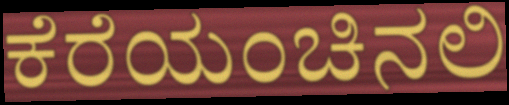
ಕೆರೆಯಂಚಿನಲಿ